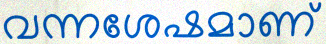
വന്നശേഷമാണ്